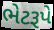
ભેટરૂપે